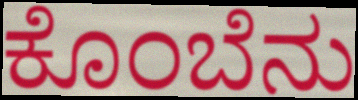
ಕೊಂಬೆನು